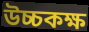
উচ্চকক্ষ